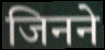
जिनने